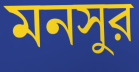
মনসুর